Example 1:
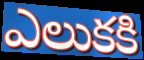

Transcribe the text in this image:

ఎలుకకి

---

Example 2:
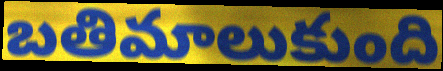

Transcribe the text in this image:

బతిమాలుకుంది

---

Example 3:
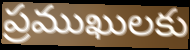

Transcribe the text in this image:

ప్రముఖులకు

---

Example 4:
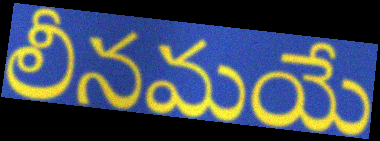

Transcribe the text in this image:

లీనమయే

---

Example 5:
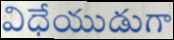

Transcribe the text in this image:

విధేయుడుగా